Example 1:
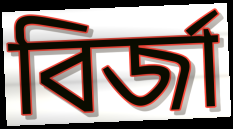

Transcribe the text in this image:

বির্জা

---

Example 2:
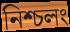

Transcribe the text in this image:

নিশ্চলং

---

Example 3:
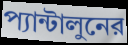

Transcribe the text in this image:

প্যান্টালুনের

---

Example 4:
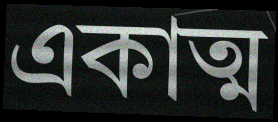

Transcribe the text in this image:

একাত্ম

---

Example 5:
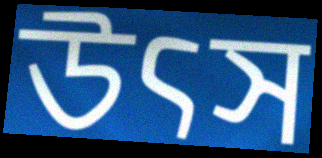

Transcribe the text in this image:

উৎস